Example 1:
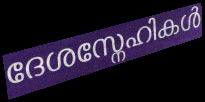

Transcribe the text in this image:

ദേശസ്നേഹികൾ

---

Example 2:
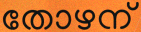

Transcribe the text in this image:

തോഴന്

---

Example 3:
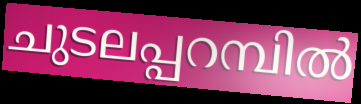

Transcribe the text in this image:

ചുടലപ്പറമ്പിൽ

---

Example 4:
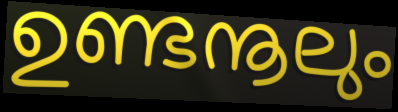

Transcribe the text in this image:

ഉണ്ടനൂലും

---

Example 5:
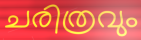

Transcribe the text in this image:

ചരിത്രവും